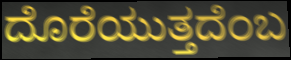
ದೊರೆಯುತ್ತದೆಂಬ